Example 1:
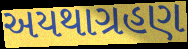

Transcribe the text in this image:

અયથાગ્રહણ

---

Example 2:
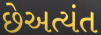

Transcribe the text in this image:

છેઅત્યંત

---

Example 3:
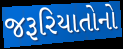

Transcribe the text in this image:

જરૂરિયાતોનો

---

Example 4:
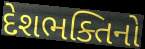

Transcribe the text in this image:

દેશભક્તિનો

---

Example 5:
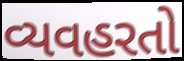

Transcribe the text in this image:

વ્યવહરતો